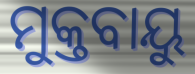
ମୁକ୍ତବାୟୁ